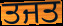
ਤਜਤ